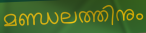
മണ്ഡലത്തിനും